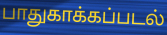
பாதுகாக்கப்படல்